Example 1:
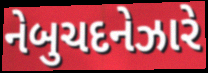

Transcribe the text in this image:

નેબુચદનેઝારે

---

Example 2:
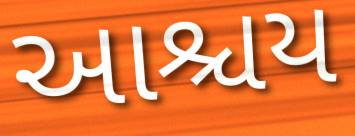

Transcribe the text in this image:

આશ્ચય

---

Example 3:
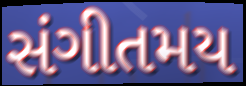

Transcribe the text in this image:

સંગીતમય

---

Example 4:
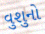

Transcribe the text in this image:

વુશુનો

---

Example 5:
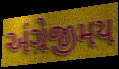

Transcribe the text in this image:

અંગ્રેજીમય